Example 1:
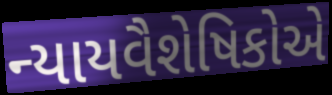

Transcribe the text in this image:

ન્યાયવૈશેષિકોએ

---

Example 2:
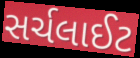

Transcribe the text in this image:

સર્ચલાઈટ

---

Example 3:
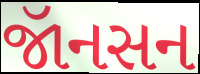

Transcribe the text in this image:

જૉનસન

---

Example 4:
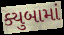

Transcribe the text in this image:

ક્યુબામાં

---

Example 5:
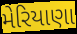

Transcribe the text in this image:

મેરિયાણા